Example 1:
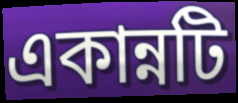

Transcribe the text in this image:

একান্নটি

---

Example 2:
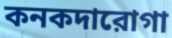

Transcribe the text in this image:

কনকদারোগা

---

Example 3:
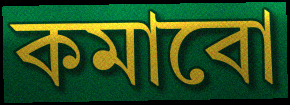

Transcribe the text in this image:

কমাবো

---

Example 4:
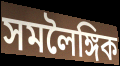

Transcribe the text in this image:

সমলৈঙ্গিক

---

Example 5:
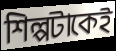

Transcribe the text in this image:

শিল্পটাকেই